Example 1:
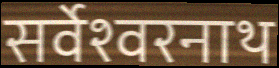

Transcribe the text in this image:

सर्वेश्वरनाथ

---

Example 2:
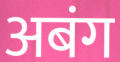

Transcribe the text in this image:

अबंग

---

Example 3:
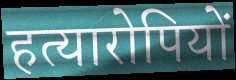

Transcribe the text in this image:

हत्‍यारोपियों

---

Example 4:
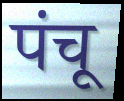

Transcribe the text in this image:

पंचू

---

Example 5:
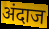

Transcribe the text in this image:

अंदाज